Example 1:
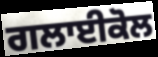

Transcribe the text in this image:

ਗਲਾਈਕੋਲ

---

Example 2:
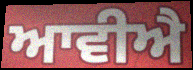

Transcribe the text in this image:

ਆਵੀਐ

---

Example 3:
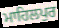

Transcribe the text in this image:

ਮਾਹਿਲਪੁਰ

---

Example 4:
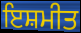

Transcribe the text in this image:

ਇਸ਼ਮੀਤ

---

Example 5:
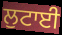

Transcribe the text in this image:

ਲੁਟਾਈ